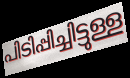
പിടിപ്പിച്ചിട്ടുള്ള